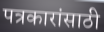
पत्रकारांसाठी